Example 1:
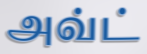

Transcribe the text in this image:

அவ்ட்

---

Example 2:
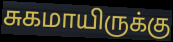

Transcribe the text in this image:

சுகமாயிருக்கு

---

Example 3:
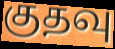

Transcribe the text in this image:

குதவு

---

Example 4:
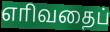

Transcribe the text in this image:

எரிவதைப்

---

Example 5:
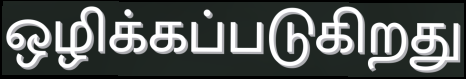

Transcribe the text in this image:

ஒழிக்கப்படுகிறது